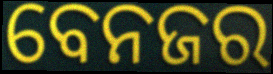
ବେନଜର